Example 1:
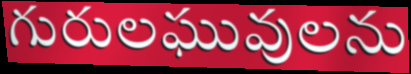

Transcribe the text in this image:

గురులఘువులను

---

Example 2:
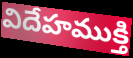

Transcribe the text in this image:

విదేహముక్తి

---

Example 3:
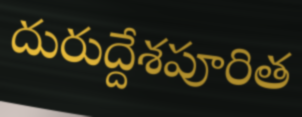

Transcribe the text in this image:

దురుద్దేశపూరిత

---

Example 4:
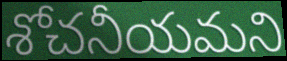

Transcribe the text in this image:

శోచనీయమని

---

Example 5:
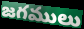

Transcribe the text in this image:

జగములు